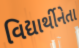
વિદ્યાર્થીનેતા